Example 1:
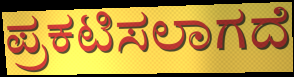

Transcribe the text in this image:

ಪ್ರಕಟಿಸಲಾಗದೆ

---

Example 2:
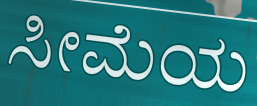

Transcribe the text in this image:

ಸೀಮೆಯ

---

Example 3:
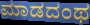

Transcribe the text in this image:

ಮಾಡದಂಥ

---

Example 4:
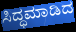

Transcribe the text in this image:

ಸಿದ್ಧಮಾಡಿದ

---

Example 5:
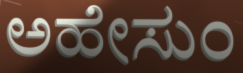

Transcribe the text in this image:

ಅಹೇಸುಂ